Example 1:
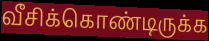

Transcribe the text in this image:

வீசிக்கொண்டிருக்க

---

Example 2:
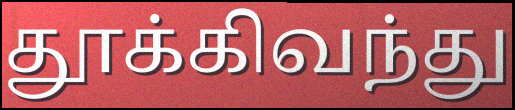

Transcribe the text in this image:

தூக்கிவந்து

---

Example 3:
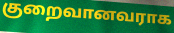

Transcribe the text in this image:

குறைவானவராக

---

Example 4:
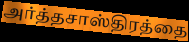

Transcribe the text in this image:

அர்த்தசாஸ்திரத்தை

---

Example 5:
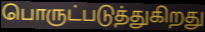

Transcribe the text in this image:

பொருட்படுத்துகிறது